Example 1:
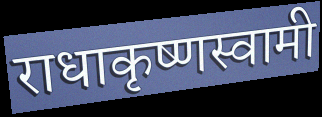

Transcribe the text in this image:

राधाकृष्णस्वामी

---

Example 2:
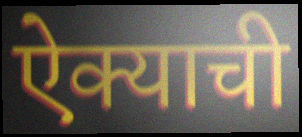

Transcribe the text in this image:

ऐक्याची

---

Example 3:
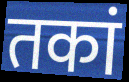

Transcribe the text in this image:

तकां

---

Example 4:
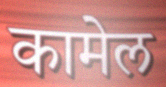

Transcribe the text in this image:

कामेल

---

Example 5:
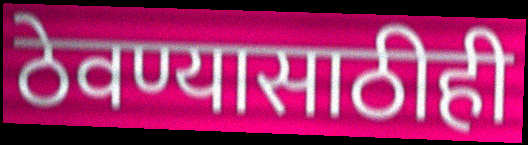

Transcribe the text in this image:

ठेवण्यासाठीही